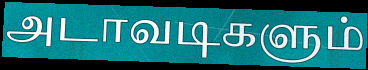
அடாவடிகளும்